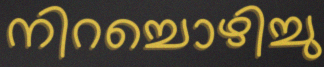
നിറച്ചൊഴിച്ചു